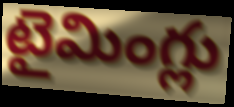
టైమింగ్లు